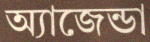
অ্যাজেন্ডা